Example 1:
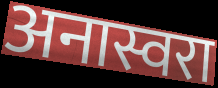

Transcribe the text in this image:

अनास्वरा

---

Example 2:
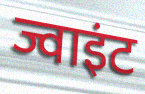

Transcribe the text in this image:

ज्वाइंट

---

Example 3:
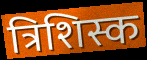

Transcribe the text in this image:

त्रिशिस्क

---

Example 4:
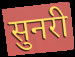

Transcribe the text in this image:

सुनरी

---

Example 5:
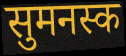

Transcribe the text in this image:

सुमनस्क